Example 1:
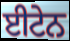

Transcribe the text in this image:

ਈਟੇਨ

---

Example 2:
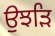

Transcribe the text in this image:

ਉਝੜਿ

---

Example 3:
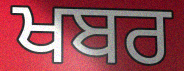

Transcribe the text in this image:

ਖਬਰ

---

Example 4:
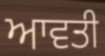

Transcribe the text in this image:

ਆਵਤੀ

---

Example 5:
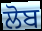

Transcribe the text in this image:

ਲੋਬ